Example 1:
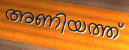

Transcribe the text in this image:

അണിയത്ത്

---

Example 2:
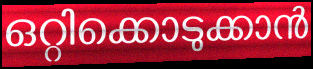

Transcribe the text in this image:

ഒറ്റിക്കൊടുക്കാൻ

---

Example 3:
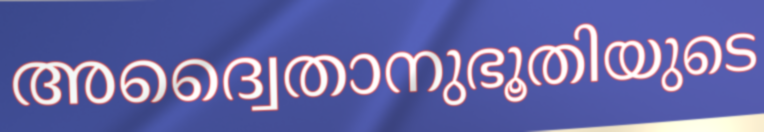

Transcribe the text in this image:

അദ്വൈതാനുഭൂതിയുടെ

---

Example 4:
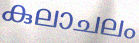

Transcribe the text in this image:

കുലാചലം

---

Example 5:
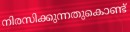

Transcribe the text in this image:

നിരസിക്കുന്നതുകൊണ്ട്